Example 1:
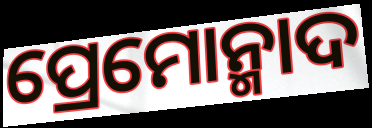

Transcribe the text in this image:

ପ୍ରେମୋନ୍ମାଦ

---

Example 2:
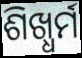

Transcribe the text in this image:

ଶିଖ୍ଧର୍ମ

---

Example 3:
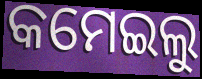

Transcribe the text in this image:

କମେଇଲୁ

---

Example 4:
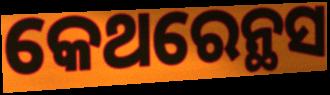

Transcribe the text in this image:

କେଥରେନ୍ଥସ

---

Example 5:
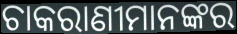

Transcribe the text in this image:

ଚାକରାଣୀମାନଙ୍କର